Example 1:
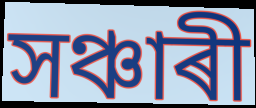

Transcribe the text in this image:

সঞ্চাৰী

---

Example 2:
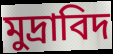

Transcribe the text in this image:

মুদ্ৰাবিদ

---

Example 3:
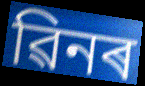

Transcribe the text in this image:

ৱিনৰ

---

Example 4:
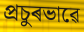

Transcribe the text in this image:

প্ৰচুৰভাৱে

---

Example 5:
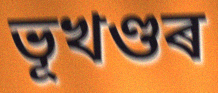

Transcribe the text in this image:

ভূখণ্ডৰ